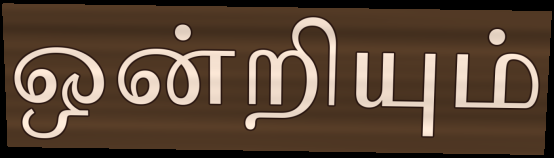
ஒன்றியும்